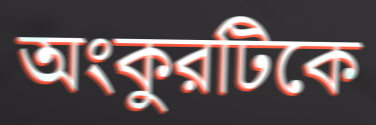
অংকুরটিকে